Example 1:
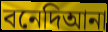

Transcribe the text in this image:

বনেদিআনা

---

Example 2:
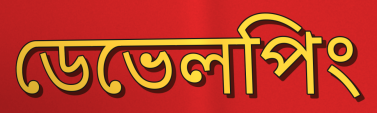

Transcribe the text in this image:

ডেভেলপিং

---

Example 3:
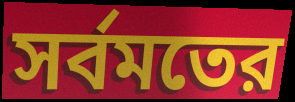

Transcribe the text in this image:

সর্বমতের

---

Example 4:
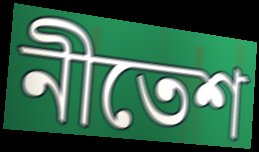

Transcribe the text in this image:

নীতেশ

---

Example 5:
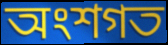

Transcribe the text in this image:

অংশগত